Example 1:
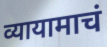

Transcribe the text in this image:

व्यायामाचं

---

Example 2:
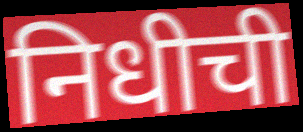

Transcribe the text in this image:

निधीची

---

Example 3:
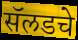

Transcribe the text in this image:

सॅलडचे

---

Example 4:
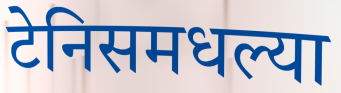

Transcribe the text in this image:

टेनिसमधल्या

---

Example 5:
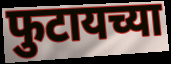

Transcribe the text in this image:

फुटायच्या